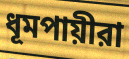
ধূমপায়ীরা